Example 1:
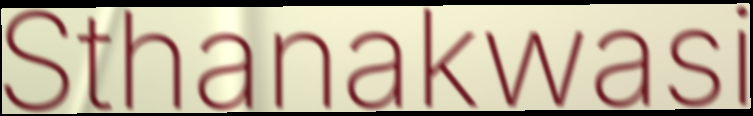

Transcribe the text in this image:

Sthanakwasi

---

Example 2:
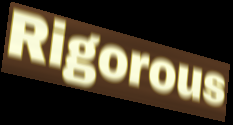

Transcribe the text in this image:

Rigorous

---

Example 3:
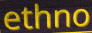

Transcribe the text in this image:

ethno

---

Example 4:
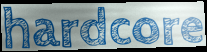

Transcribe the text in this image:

hardcore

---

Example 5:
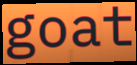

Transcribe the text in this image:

goat